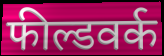
फील्डवर्क